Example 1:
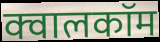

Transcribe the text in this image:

क्‍वालकॉम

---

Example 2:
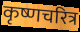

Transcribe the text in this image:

कृष्णचरित्र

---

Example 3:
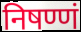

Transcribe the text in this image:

निषण्णं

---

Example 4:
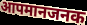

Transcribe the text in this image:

आपमानजनक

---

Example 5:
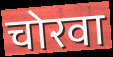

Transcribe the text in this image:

चोरवा